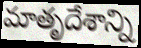
మాతృదేశాన్ని